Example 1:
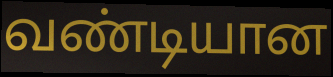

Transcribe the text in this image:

வண்டியான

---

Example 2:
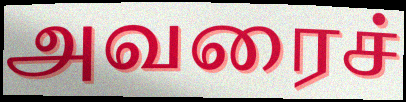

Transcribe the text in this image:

அவரைச்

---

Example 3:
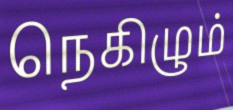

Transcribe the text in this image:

நெகிழும்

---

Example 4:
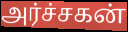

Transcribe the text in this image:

அர்ச்சகன்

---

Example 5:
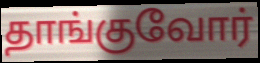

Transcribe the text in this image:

தாங்குவோர்